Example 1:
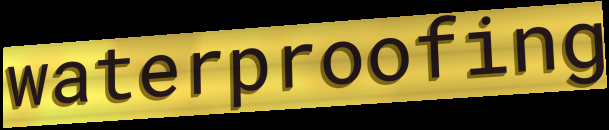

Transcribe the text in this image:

waterproofing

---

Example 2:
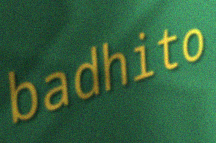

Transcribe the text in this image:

badhito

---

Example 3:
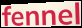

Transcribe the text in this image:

fennel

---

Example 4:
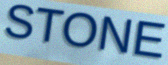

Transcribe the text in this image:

STONE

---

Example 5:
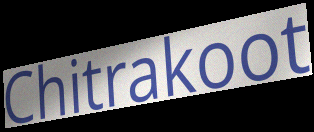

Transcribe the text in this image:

Chitrakoot